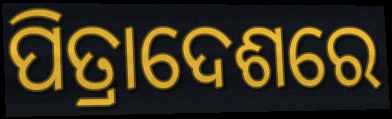
ପିତ୍ରାଦେଶରେ